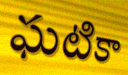
ఘటికా